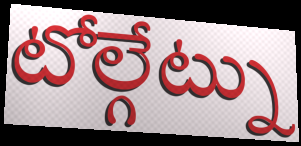
టోల్గేట్ను